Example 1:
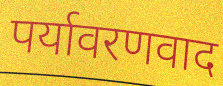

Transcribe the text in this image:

पर्यावरणवाद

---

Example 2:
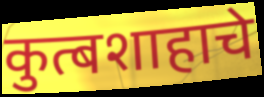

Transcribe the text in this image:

कुत्बशाहाचे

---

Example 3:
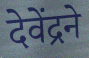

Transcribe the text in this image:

देवेंद्रने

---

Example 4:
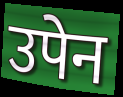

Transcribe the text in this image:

उपेन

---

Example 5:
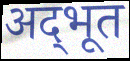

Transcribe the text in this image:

अद्‌भूत